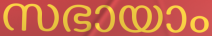
സഭായാം